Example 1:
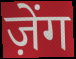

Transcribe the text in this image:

ज़ेंग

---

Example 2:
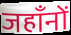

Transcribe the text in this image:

जहाँनों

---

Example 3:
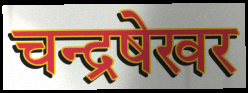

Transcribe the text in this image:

चन्द्रषेखर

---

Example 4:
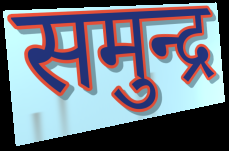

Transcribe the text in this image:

समुन्द्र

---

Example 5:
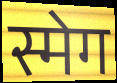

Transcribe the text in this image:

स्मेग